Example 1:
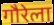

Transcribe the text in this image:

गौरेला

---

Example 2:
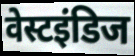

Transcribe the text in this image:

वेस्टइंडिज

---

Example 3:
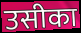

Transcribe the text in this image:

उसीका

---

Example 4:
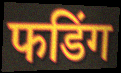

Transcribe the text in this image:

फडिंग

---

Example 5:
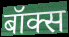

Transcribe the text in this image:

बॉक्स